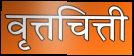
वृत्तचित्ती